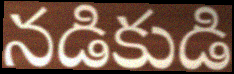
నడికుడి